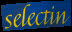
selectin